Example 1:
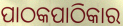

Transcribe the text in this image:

ପାଠକପାଠିକାର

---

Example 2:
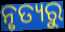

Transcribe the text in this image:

ନୃତ୍ୟରୁ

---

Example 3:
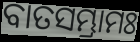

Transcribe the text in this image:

ବାତସମ୍ଭ୍ରାମଃ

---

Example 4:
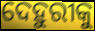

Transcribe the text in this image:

ଦେହୁରୀକୁ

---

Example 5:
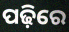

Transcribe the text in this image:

ପଢ଼ିରେ